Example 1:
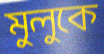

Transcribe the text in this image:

মুলুকে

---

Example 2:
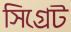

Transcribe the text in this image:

সিগ্রেট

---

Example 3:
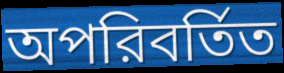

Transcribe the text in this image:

অপরিবর্তিত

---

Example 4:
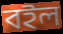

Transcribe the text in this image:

বইল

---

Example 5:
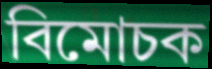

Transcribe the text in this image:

বিমোচক